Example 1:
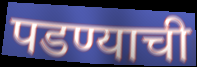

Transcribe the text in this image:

पडण्याची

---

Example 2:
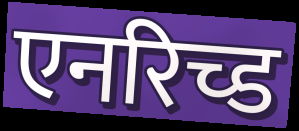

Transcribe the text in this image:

एनरिच्ड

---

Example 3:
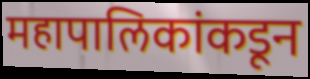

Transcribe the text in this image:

महापालिकांकडून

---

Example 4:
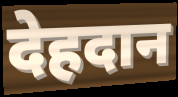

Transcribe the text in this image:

देहदान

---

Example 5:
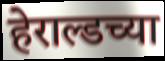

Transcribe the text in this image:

हेराल्डच्या